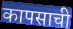
कापसाची